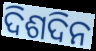
ଦିଶଦିନ